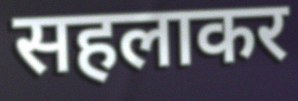
सहलाकर